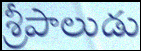
శ్రీపాలుడు